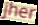
jher